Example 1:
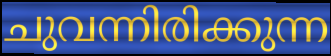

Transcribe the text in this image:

ചുവന്നിരിക്കുന്ന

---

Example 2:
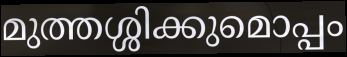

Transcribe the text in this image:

മുത്തശ്ശിക്കുമൊപ്പം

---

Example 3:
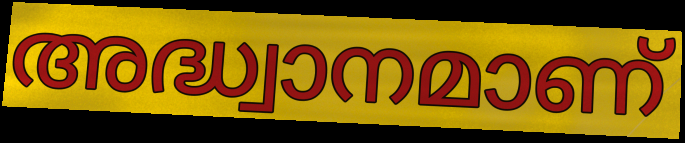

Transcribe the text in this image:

അദ്ധ്വാനമാണ്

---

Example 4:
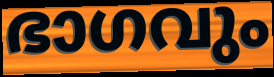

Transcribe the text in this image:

ഭാഗവും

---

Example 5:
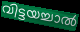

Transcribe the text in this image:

വിട്ടയച്ചാൽ